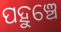
ପହୁଞ୍ଚେ